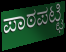
ಪಾಠಪಟ್ಟಿ